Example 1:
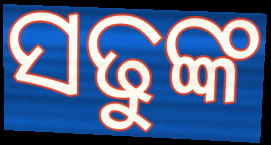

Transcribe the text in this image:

ସଢୁଙ୍କ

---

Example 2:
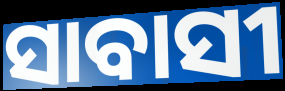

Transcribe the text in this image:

ସାବାସୀ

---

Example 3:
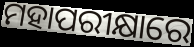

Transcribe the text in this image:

ମହାପରୀକ୍ଷାରେ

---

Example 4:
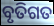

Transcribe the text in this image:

ବୃତିଗତ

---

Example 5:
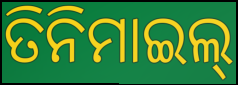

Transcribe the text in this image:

ତିନିମାଇଲ୍